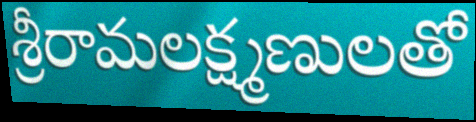
శ్రీరామలక్ష్మణులతో